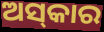
ଅସ୍‌କାର